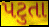
પટુતા